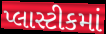
પ્લાસ્ટીકમાં